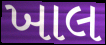
ખાલ